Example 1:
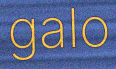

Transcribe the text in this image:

galo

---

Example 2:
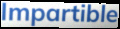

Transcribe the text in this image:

Impartible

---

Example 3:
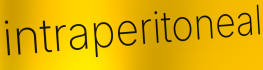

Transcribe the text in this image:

intraperitoneal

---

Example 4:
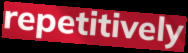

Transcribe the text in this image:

repetitively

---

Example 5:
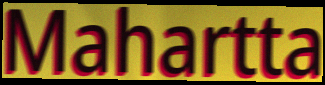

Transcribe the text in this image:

Mahartta